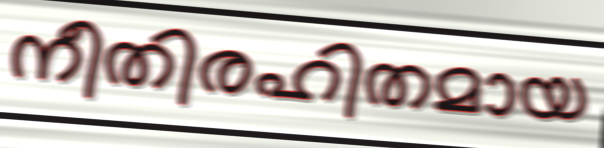
നീതിരഹിതമായ